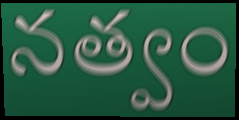
నత్వం